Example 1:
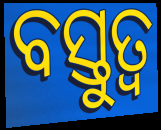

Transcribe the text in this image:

ବସ୍ତୁତ୍ୱ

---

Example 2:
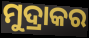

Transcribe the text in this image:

ମୁଦ୍ରାକର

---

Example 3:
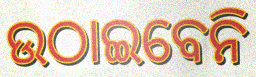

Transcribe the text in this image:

ଉଠାଇବେନି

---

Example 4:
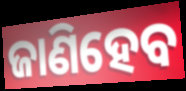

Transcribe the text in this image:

ଜାଣିହେବ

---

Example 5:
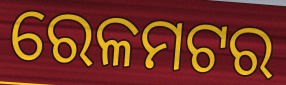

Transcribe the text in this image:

ରେଳମଟର